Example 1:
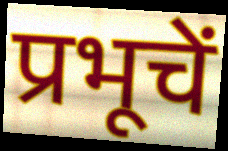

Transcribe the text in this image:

प्रभूचें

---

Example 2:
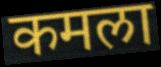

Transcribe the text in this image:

कमला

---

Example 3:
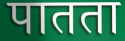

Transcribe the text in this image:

पातता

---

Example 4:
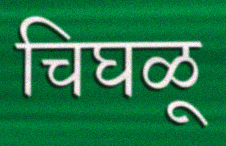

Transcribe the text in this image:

चिघळू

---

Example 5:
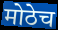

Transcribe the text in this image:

मोठेच